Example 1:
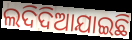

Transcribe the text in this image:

ଲଦିଦିଆଯାଇଛି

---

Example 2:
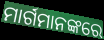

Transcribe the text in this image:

ମାର୍ଗମାନଙ୍କରେ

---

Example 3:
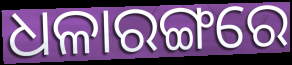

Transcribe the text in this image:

ଧଳାରଙ୍ଗରେ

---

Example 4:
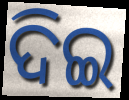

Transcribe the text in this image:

ଦିଇ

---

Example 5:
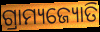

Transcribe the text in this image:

ଗ୍ରାମ୍ୟଜ୍ୟୋତି